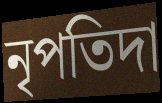
নৃপতিদা